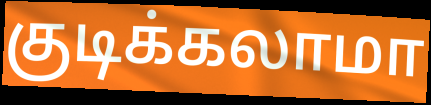
குடிக்கலாமா